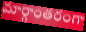
మార్గాంతరంగా